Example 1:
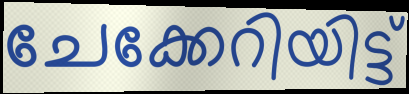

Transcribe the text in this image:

ചേക്കേറിയിട്ട്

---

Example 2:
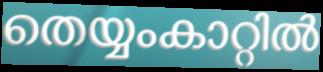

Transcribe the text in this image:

തെയ്യംകാറ്റിൽ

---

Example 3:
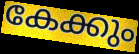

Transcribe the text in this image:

കേക്കും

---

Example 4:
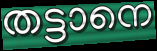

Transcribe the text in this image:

തട്ടാനെ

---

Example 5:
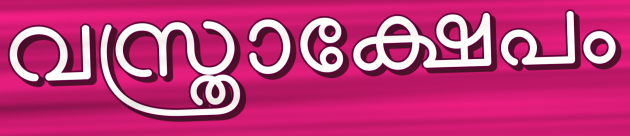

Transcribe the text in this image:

വസ്ത്രാക്ഷേപം